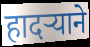
हादऱ्याने